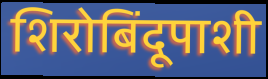
शिरोबिंदूपाशी